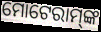
ମୋଟେରାମ୍‌ଙ୍କ